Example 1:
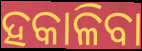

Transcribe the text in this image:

ହକାଳିବା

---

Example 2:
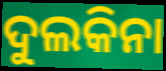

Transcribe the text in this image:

ଦୁଲକିନା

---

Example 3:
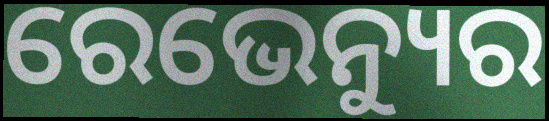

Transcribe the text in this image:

ରେଭେନ୍ୟୁର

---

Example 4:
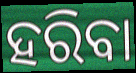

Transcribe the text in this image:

ହରିବା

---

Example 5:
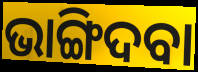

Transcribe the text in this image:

ଭାଙ୍ଗିଦବା